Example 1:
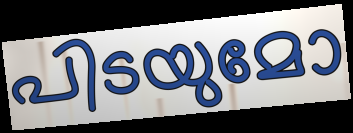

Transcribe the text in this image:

പിടയുമോ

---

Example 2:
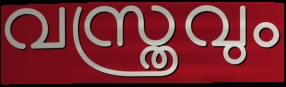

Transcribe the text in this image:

വസ്ത്രവും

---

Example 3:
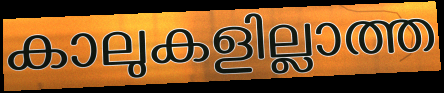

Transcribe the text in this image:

കാലുകളില്ലാത്ത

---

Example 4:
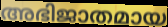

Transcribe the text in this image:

അഭിജാതമായ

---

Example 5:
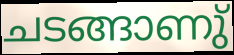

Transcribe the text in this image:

ചടങ്ങാണു്